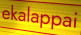
ekalappai